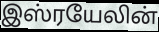
இஸ்ரயேலின்